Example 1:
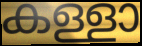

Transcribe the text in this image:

കള്ളാ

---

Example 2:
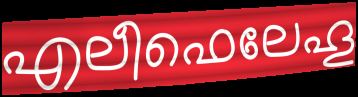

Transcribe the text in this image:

എലീഫെലേഹൂ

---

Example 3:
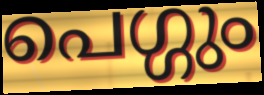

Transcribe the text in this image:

പെഗ്ഗും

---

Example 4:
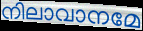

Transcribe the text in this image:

നിലാവാനമേ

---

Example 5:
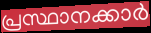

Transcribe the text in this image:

പ്രസ്ഥാനക്കാർ